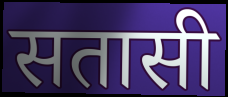
सतासी